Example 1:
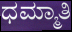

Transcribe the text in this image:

ಧಮ್ಮಾತಿ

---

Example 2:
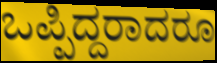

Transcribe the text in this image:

ಒಪ್ಪಿದ್ದರಾದರೂ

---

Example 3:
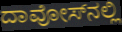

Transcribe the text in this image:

ದಾವೋಸ್‌ನಲ್ಲಿ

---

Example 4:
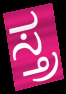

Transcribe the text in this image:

ಸ್ತ್ರ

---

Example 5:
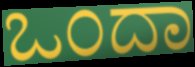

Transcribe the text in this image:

ಒಂದಾ